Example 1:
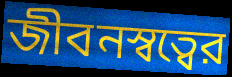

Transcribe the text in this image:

জীবনস্বত্বের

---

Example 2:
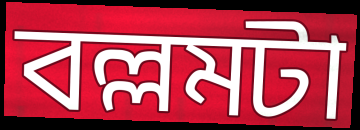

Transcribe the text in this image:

বল্লমটা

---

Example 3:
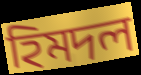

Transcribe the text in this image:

হিমদল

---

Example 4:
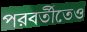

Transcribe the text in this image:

পরবর্তীতেও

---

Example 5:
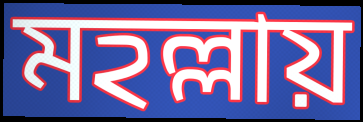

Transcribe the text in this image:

মহল্লায়